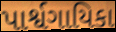
પાર્શ્વગાયિકા